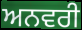
ਅਨਵਰੀ